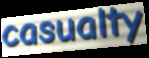
casualty